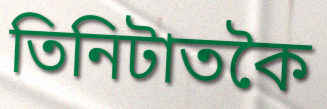
তিনিটাতকৈ